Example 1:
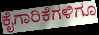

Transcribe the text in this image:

ಕೈಗಾರಿಕೆಗಳಿಗೂ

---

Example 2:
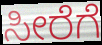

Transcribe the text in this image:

ಸೀರೆಗೆ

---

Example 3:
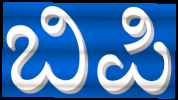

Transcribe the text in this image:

ಬಿಪಿ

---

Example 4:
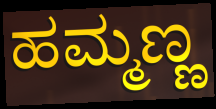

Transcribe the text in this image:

ಹಮ್ಮಣ್ಣ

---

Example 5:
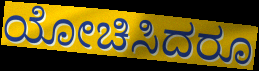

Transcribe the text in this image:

ಯೋಚಿಸಿದರೂ